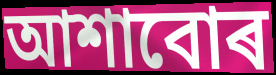
আশাবোৰ